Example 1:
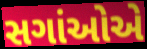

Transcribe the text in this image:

સગાંઓએ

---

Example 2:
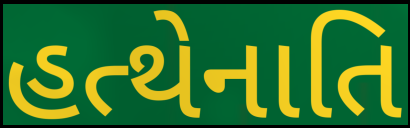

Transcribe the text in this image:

હત્થેનાતિ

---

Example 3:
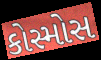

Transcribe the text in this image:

કોસ્મોસ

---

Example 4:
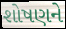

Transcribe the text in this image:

શોષણને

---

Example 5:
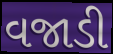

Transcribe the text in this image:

વજાડી